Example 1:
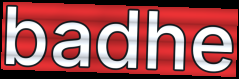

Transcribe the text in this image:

badhe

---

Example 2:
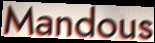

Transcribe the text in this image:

Mandous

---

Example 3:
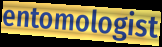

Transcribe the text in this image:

entomologist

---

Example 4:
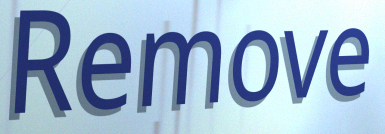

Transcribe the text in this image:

Remove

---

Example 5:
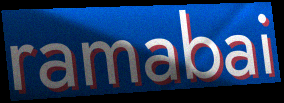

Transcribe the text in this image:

ramabai